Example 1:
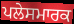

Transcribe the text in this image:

ਪਲੇਸਮਾਰਕ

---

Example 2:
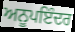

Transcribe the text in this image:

ਅਨੂਪਇੰਦਰ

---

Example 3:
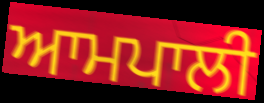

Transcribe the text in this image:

ਆਮਪਾਲੀ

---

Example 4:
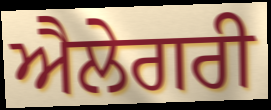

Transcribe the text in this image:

ਐਲੇਗਰੀ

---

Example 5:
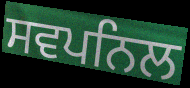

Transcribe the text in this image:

ਸਵਪਨਿਲ